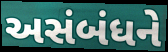
અસંબંધને